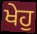
ਖੇਹੁ